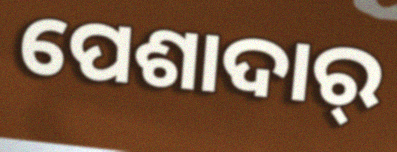
ପେଶାଦାର୍